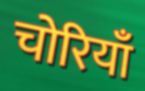
चोरियाँ